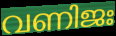
വണിജഃ